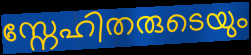
സ്നേഹിതരുടെയും